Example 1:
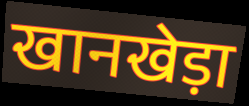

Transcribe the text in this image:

खानखेड़ा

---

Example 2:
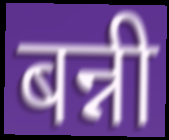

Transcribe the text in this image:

बन्नी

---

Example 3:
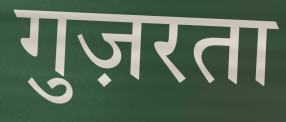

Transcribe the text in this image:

गुज़रता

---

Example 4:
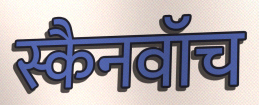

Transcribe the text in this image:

स्कैनवॉच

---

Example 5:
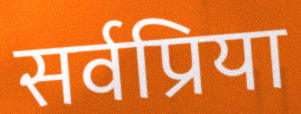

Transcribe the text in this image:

सर्वप्रिया